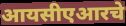
आयसीएआरचे